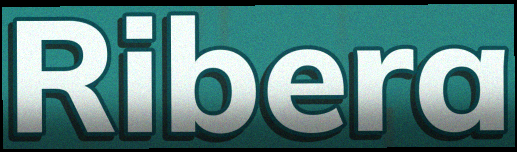
Ribera